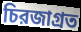
চিরজাগ্রত